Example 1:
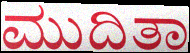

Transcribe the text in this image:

ಮುದಿತಾ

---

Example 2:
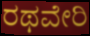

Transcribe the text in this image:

ರಥವೇರಿ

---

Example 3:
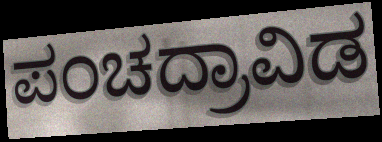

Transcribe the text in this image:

ಪಂಚದ್ರಾವಿಡ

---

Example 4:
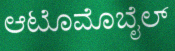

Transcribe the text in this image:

ಆಟೊಮೊಬೈಲ್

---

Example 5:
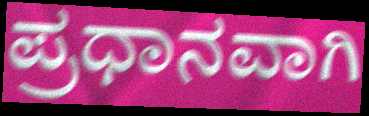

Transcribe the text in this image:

ಪ್ರಧಾನವಾಗಿ